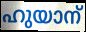
ഹുയാന്